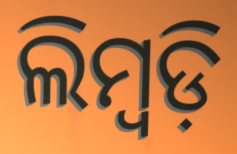
ଲିମ୍ବଡ଼ି